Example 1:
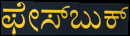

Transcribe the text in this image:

ಫೇಸ್‍ಬುಕ್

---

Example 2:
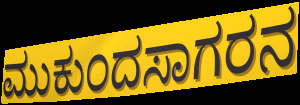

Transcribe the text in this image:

ಮುಕುಂದಸಾಗರನ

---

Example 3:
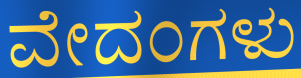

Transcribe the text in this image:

ವೇದಂಗಳು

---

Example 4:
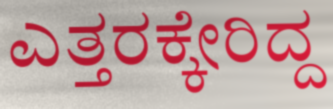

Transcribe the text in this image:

ಎತ್ತರಕ್ಕೇರಿದ್ದ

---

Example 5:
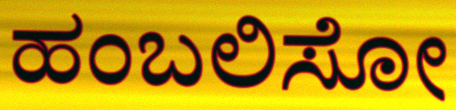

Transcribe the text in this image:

ಹಂಬಲಿಸೋ